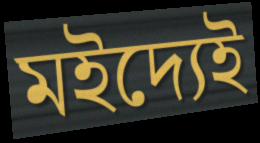
মইদ্যেই